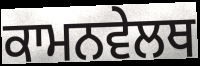
ਕਾਮਨਵੇਲਥ